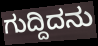
ಗುದ್ದಿದನು